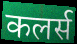
कलर्स